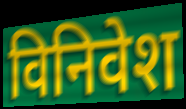
विनिवेश